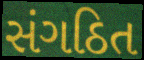
સંગઠિત